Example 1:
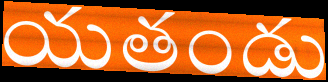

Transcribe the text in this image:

యతండు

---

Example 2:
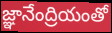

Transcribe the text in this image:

జ్ఞానేంద్రియంతో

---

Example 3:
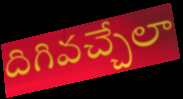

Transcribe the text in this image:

దిగివచ్చేలా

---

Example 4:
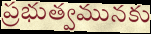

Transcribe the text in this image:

ప్రభుత్వమునకు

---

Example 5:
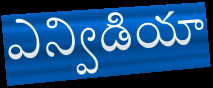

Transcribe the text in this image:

ఎన్విడియా